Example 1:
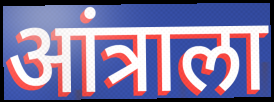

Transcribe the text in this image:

आंत्राला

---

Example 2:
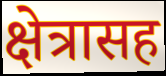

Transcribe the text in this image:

क्षेत्रासह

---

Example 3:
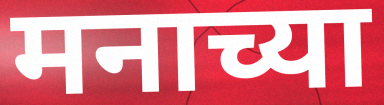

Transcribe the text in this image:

मनाच्या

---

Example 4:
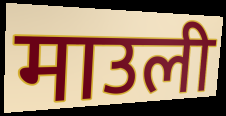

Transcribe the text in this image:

माउली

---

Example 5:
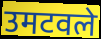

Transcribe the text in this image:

उमटवले